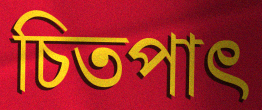
চিতপাৎ